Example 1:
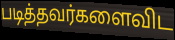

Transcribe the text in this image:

படித்தவர்களைவிட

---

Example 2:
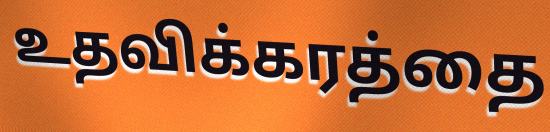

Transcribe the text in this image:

உதவிக்கரத்தை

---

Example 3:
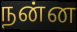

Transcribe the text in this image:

நன்ன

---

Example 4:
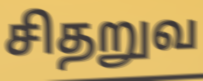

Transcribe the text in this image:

சிதறுவ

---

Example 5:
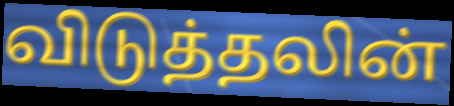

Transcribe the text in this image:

விடுத்தலின்